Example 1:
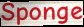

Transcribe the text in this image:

Sponge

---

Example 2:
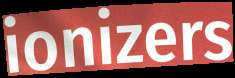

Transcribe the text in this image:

ionizers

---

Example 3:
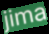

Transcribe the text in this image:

jima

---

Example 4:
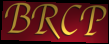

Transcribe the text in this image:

BRCP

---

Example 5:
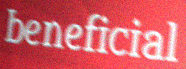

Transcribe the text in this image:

beneficial